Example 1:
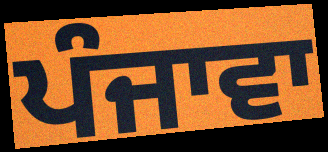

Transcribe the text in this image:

ਪੰਜਾਵਾ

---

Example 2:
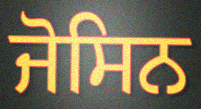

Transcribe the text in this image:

ਜੋਸਿਨ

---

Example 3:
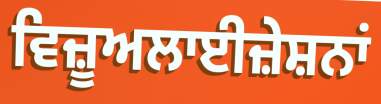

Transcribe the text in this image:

ਵਿਜ਼ੂਅਲਾਈਜ਼ੇਸ਼ਨਾਂ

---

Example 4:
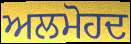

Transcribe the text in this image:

ਅਲਮੋਹਦ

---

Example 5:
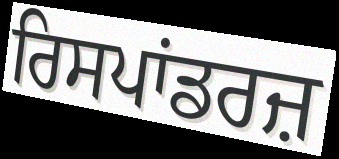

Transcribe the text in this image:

ਰਿਸਪਾਂਡਰਜ਼